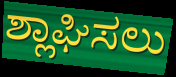
ಶ್ಲಾಘಿಸಲು